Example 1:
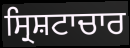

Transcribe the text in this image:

ਸ੍ਰਿਸ਼ਟਾਚਾਰ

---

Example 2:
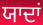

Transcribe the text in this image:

ਯਾਦਾਂ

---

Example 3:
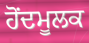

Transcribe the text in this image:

ਹੋਂਦਮੂਲਕ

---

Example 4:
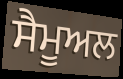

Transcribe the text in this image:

ਸੈਮੂਅਲ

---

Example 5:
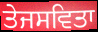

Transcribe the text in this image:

ਤੇਜਸਵਿਤਾ